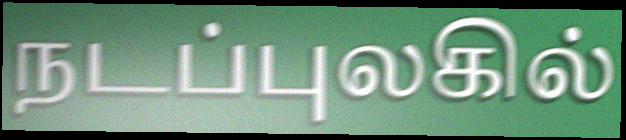
நடப்புலகில்